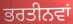
ਭਰਤੀਨਵਾਂ